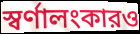
স্বর্ণালংকারও